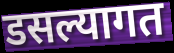
डसल्यागत